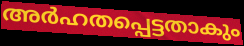
അർഹതപ്പെട്ടതാകും